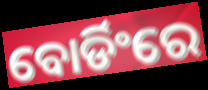
ବୋର୍ଡିଂରେ